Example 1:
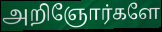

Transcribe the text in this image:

அறிஞோர்களே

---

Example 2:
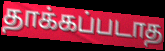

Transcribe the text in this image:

தாக்கப்படாத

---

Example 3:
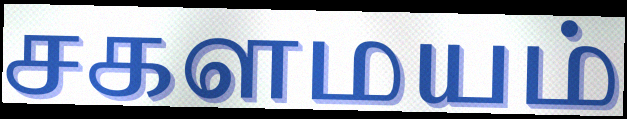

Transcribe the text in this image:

சகளமயம்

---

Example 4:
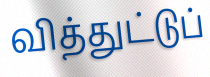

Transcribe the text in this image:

வித்துட்டுப்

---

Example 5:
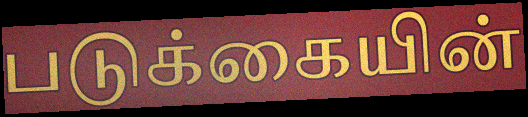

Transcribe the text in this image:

படுக்கையின்